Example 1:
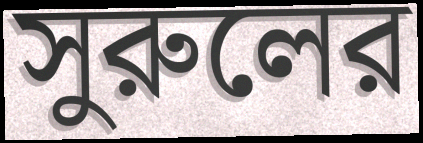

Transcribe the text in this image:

সুরুলের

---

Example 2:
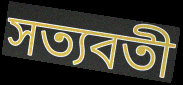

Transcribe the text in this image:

সত্যবতী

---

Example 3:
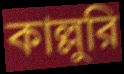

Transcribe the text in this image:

কাল্লুরি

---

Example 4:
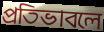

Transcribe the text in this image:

প্রতিভাবলে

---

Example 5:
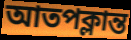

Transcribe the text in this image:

আতপক্লান্ত